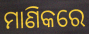
ମାଣିକରେ